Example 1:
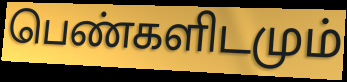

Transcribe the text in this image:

பெண்களிடமும்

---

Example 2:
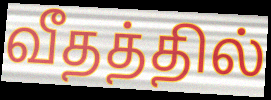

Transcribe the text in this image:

வீதத்தில்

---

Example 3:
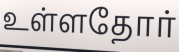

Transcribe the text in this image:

உள்ளதோர்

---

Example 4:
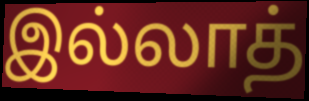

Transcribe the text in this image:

இல்லாத்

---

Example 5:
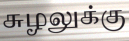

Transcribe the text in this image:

சுழலுக்கு